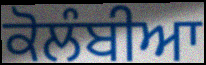
ਕੋਲੰਬੀਆ